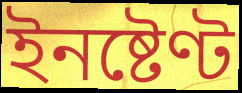
ইনষ্টেণ্ট